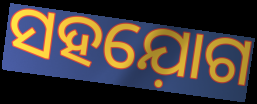
ସହଯ଼ୋଗ